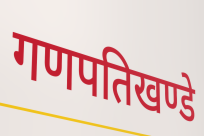
गणपतिखण्डे